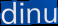
dinu